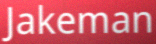
Jakeman